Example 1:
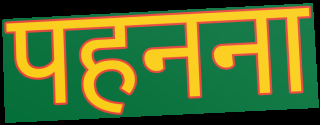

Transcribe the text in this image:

पहनना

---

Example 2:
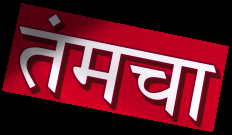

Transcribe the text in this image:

तंमचा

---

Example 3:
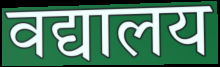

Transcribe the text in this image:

वद्यालय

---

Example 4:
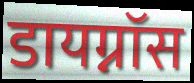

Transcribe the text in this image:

डायग्नॉस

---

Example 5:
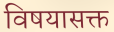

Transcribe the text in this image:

विषयासक्त